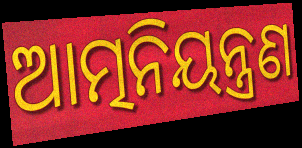
ଆତ୍ମନିୟନ୍ତ୍ରଣ